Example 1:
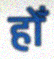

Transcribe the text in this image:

होँ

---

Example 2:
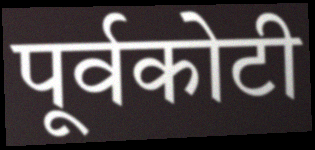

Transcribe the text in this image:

पूर्वकोटी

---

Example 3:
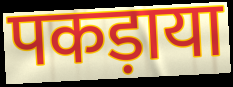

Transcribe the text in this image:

पकड़ाया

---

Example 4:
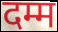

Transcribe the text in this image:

दम्म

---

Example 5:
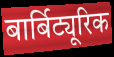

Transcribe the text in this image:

बार्बिट्यूरिक